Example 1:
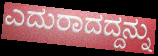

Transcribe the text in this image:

ಎದುರಾದದ್ದನ್ನು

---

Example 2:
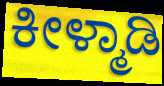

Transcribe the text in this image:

ಕೀಳ್ಮಾಡಿ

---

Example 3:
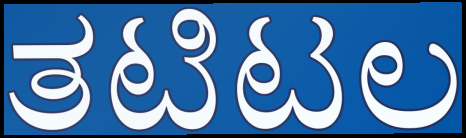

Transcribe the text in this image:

ತಟಿಟಲ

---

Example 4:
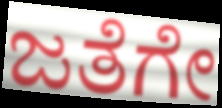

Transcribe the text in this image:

ಜತೆಗೇ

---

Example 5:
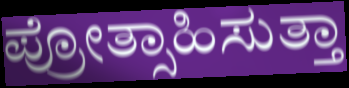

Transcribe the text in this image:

ಪ್ರೋತ್ಸಾಹಿಸುತ್ತಾ